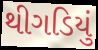
થીગડિયું